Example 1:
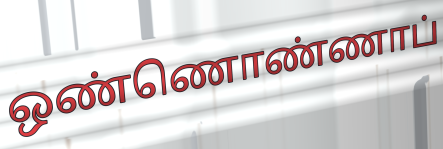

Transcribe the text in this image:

ஒண்ணொண்ணாப்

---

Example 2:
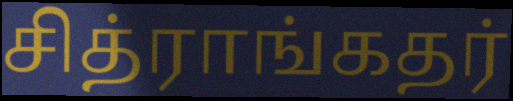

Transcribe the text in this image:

சித்ராங்கதர்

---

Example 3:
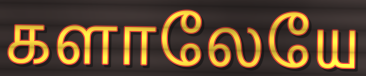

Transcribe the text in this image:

களாலேயே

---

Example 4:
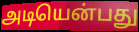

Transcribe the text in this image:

அடியென்பது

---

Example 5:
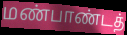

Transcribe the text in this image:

மண்பாண்டத்